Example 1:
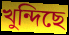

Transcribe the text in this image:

খুন্দিছে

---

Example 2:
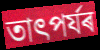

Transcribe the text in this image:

তাৎপৰ্যৰ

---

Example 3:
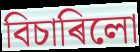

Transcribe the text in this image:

বিচাৰিলো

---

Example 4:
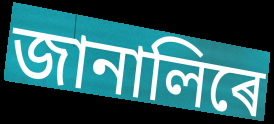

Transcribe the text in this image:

জানালিৰে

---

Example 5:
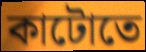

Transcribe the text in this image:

কাটোতে